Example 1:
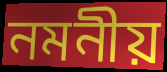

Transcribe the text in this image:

নমনীয়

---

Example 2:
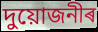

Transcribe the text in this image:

দুয়োজনীৰ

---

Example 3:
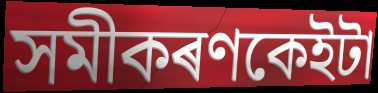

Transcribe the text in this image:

সমীকৰণকেইটা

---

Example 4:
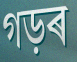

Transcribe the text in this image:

গড়ৰ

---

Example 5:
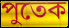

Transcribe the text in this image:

পুতেক